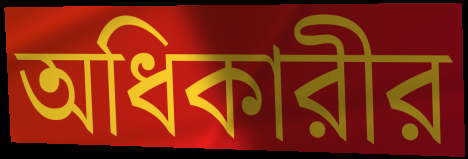
অধিকারীর